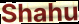
Shahu